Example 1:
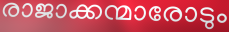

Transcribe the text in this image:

രാജാക്കന്മാരോടും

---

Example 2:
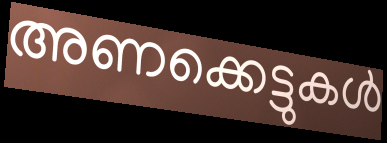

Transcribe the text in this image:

അണക്കെട്ടുകൾ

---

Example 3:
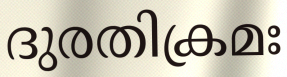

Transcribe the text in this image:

ദുരതിക്രമഃ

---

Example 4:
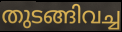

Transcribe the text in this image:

തുടങ്ങിവച്ച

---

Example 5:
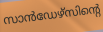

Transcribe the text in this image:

സാൻഡേഴ്സിന്റെ